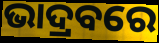
ଭାଦ୍ରବରେ